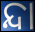
ନ୍ଦା